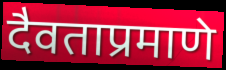
दैवताप्रमाणे